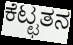
ಕೆಟ್ಟತನ